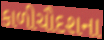
કાળીચૌદશના